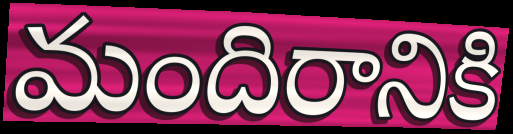
మందిరానికి